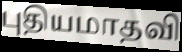
புதியமாதவி